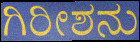
ಗಿರೀಶನು